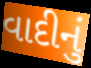
વાદીનું